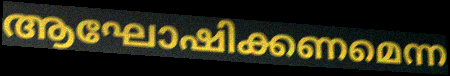
ആഘോഷിക്കണമെന്ന